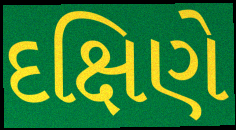
દક્ષિણે